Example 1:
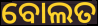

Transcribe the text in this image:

ବୋଲତ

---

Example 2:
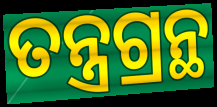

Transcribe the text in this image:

ତନ୍ତ୍ରଗ୍ରନ୍ଥ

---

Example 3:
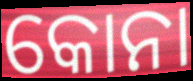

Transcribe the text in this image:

କୋନା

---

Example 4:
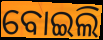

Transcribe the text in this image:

ବୋଇଲି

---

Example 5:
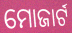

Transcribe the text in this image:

ମୋଜାର୍ଟ